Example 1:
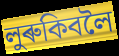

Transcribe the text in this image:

লুৰুকিবলৈ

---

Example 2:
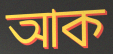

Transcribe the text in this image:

আক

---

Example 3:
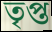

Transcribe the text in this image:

তৃপ্ত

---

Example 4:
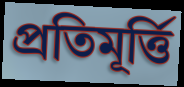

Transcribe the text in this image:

প্ৰতিমূৰ্ত্তি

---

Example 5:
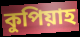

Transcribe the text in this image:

কুপিয়াহ